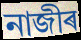
নাজীৰ